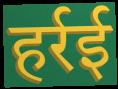
हर्रई